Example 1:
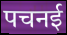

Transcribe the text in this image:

पचनई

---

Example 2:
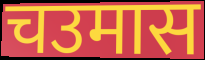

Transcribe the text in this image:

चउमास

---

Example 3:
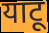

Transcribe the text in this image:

याटू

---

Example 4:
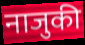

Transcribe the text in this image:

नाजुकी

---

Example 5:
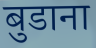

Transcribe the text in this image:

बुडाना